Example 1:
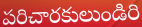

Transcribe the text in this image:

పరిచారకులుండిరి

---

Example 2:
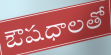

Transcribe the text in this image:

ఔషధాలతో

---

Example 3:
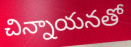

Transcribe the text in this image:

చిన్నాయనతో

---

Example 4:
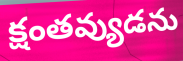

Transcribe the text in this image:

క్షంతవ్యుడను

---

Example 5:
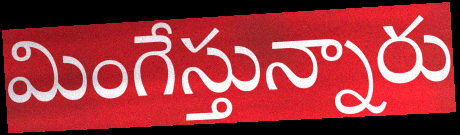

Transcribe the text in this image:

మింగేస్తున్నారు